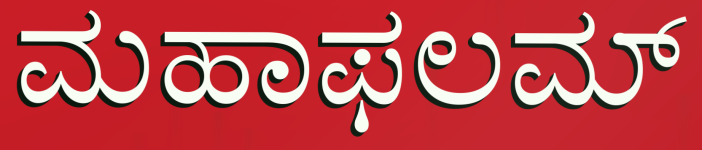
ಮಹಾಫಲಮ್